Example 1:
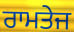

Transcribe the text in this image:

ਰਾਮਤੇਜ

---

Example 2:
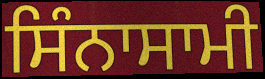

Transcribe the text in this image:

ਸਿੰਨਾਸਾਮੀ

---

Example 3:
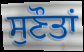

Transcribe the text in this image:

ਸੁਣੌਤਾਂ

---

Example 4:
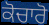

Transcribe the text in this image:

ਕੋਚਾਰੋ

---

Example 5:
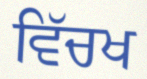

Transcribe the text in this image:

ਵਿੱਚਖ